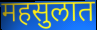
महसुलात